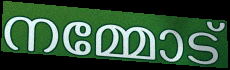
നമ്മോട്